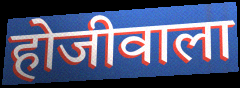
होजीवाला